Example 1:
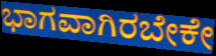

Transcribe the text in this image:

ಭಾಗವಾಗಿರಬೇಕೇ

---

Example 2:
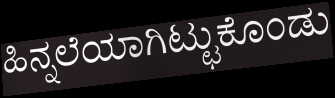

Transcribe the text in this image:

ಹಿನ್ನಲೆಯಾಗಿಟ್ಟುಕೊಂಡು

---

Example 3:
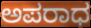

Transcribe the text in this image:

ಅಪರಾಧ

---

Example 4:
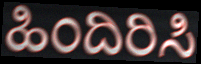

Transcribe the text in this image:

ಹಿಂದಿರಿಸಿ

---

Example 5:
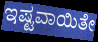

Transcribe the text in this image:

ಇಷ್ಟವಾಯಿತೇ